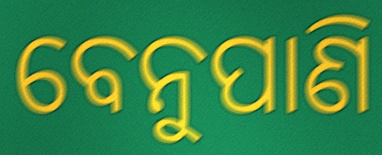
ବେନୁପାଣି